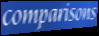
comparisons